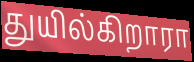
துயில்கிறாரா